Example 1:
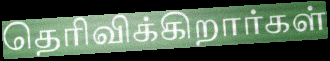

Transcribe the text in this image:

தெரிவிக்கிறார்கள்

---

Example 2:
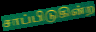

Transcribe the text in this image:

சாப்பிடுகின்ற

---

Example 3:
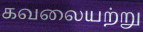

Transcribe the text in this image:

கவலையற்று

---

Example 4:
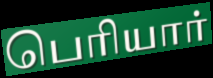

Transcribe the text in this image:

பெரியார்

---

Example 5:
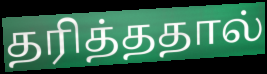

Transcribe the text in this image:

தரித்ததால்